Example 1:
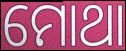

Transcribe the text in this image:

ମୋଥା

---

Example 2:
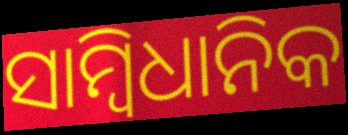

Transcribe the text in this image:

ସାମ୍ବିଧାନିକ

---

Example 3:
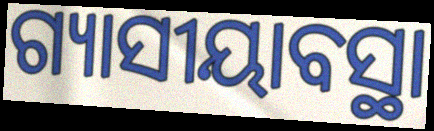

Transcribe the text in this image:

ଗ୍ୟାସୀୟାବସ୍ଥା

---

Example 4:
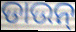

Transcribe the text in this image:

ଡାଉନ୍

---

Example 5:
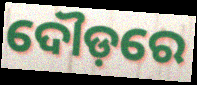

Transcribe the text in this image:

ଦୌଡ଼ରେ